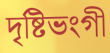
দৃষ্টিভংগী